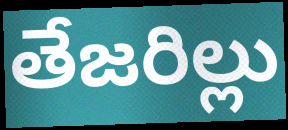
తేజరిల్లు